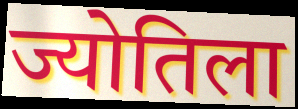
ज्योतिला